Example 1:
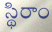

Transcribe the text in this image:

స్థిరాం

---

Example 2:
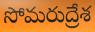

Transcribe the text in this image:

సోమరుద్రేశ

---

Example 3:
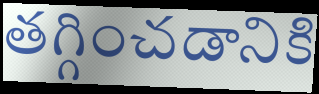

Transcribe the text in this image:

తగ్గించడానికి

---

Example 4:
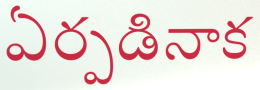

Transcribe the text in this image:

ఏర్పడినాక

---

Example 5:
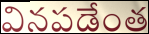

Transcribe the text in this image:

వినపడేంత